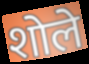
शोले